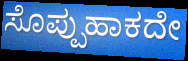
ಸೊಪ್ಪುಹಾಕದೇ